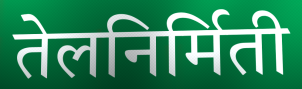
तेलनिर्मिती